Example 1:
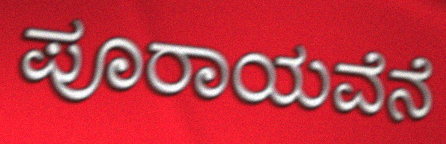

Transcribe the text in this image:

ಪೂರಾಯವೆನೆ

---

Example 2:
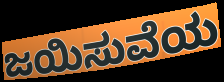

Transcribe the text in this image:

ಜಯಿಸುವೆಯ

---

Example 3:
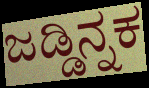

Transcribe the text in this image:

ಜಡ್ಡಿನ್ನಕ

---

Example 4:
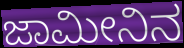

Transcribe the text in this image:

ಜಾಮೀನಿನ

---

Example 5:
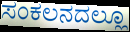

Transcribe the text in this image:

ಸಂಕಲನದಲ್ಲೂ